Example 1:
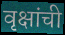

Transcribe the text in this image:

वृक्षांची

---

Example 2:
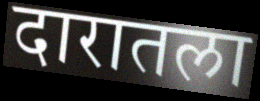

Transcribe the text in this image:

दारातला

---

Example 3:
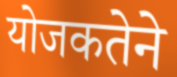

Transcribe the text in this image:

योजकतेने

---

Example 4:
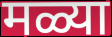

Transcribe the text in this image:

मळ्या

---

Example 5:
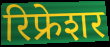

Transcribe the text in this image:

रिफ्रेशर